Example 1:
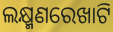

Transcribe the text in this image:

ଲକ୍ଷ୍ମଣରେଖାଟି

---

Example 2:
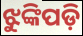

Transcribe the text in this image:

ଝୁଙ୍କିପଡ଼ି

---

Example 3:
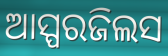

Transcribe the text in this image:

ଆସ୍ପରଜିଲସ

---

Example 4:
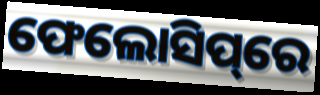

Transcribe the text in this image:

ଫେଲୋସିପ୍‌ରେ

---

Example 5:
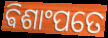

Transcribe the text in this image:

ଵିଶାଂପତେ